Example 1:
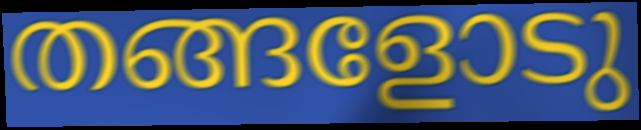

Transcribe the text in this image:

തങ്ങളോടു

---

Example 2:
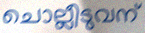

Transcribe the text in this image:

ചൊല്ലീടുവന്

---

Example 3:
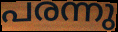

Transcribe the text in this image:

പരന്നു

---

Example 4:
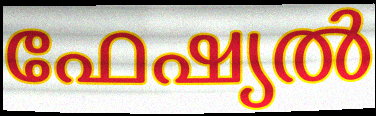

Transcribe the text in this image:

ഫേഷ്യൽ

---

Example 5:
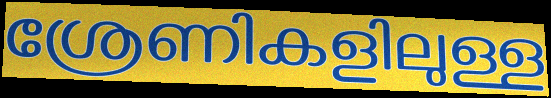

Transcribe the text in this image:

ശ്രേണികളിലുള്ള